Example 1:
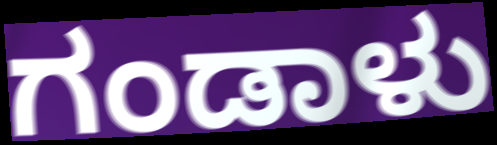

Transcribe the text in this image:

ಗಂಡಾಳು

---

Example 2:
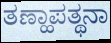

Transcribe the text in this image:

ತಣ್ಹಾಪತ್ಥನಾ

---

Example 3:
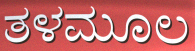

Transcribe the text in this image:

ತಳಮೂಲ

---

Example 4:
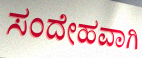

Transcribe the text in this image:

ಸಂದೇಹವಾಗಿ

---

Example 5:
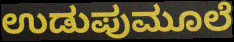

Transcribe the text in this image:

ಉಡುಪುಮೂಲೆ